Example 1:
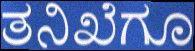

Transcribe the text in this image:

ತನಿಖೆಗೂ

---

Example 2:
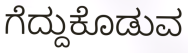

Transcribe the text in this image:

ಗೆದ್ದುಕೊಡುವ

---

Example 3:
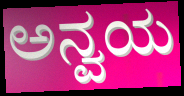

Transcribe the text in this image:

ಅನ್ವಯ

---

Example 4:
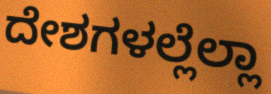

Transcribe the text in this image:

ದೇಶಗಳಲ್ಲೆಲ್ಲಾ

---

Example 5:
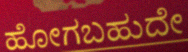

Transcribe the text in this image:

ಹೋಗಬಹುದೇ